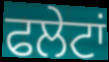
ਫਲੇਟਾਂ